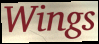
Wings